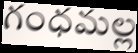
గంధమల్ల